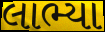
લાભ્યા